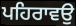
ਪਹਿਰਾਵਉ